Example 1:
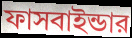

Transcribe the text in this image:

ফাসবাইন্ডার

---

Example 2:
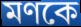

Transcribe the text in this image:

মণকে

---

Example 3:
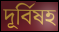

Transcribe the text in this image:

দূর্বিষহ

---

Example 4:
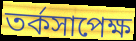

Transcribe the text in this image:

তর্কসাপেক্ষ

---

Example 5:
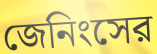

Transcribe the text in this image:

জেনিংসের